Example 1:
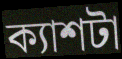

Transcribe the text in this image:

ক্যাশটা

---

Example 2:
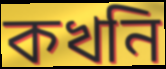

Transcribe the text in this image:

কখনি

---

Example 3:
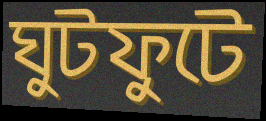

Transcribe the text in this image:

ঘুটফুটে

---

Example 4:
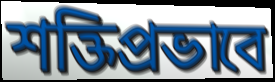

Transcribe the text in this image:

শক্তিপ্রভাবে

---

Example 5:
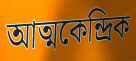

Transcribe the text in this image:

আত্মকেন্দ্রিক